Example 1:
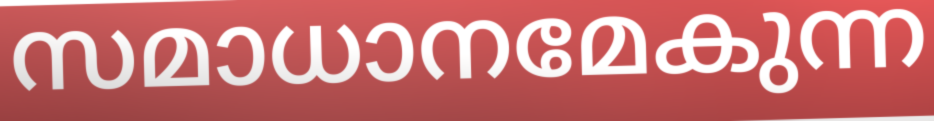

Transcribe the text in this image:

സമാധാനമേകുന്ന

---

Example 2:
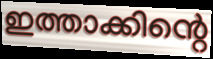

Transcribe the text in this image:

ഇത്താക്കിന്റെ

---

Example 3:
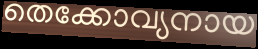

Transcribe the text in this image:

തെക്കോവ്യനായ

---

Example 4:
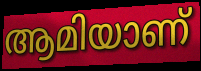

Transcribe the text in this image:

ആമിയാണ്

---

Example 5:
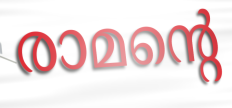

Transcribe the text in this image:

രാമന്റെ